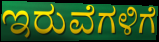
ಇರುವೆಗಳಿಗೆ